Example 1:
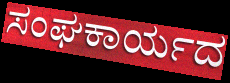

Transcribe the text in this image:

ಸಂಘಕಾರ್ಯದ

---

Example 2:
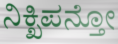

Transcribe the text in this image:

ನಿಕ್ಖಿಪನ್ತೋ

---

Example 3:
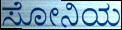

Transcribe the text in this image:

ಸೋನಿಯ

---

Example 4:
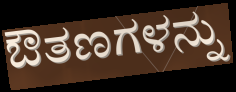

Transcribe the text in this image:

ಔತಣಗಳನ್ನು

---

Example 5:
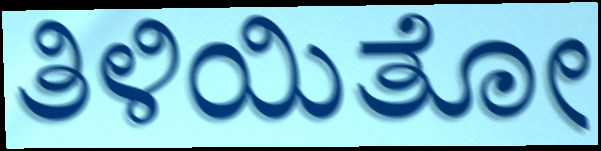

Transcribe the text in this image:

ತಿಳಿಯಿತೋ